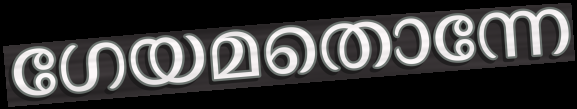
ഗേയമതൊന്നേ